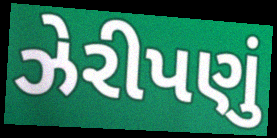
ઝેરીપણું